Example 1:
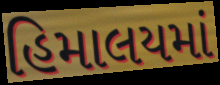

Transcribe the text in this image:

હિમાલયમાં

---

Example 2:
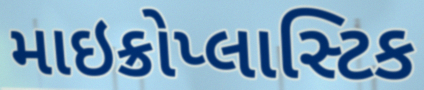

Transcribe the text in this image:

માઇક્રોપ્લાસ્ટિક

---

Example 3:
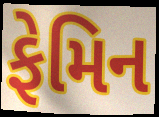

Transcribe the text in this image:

ફેમિન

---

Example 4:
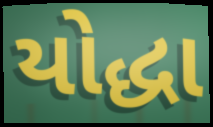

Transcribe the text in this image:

યોદ્ધા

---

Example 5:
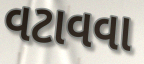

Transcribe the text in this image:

વટાવવા